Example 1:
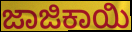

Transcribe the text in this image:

ಜಾಜಿಕಾಯಿ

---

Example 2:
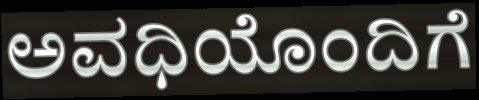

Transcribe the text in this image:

ಅವಧಿಯೊಂದಿಗೆ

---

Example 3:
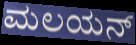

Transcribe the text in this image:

ಮಲಯನ್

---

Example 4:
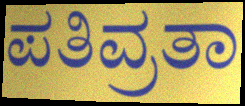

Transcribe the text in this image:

ಪತಿವ್ರತಾ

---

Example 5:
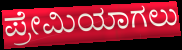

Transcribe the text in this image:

ಪ್ರೇಮಿಯಾಗಲು